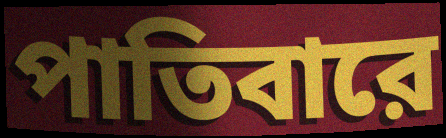
পাতিবারে